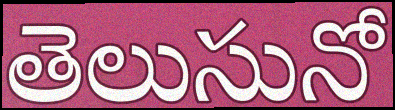
తెలుసునో